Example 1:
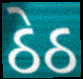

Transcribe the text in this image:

ઠેઠ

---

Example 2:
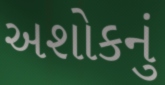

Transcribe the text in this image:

અશોકનું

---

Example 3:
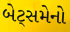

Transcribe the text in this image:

બેટ્સમેનો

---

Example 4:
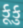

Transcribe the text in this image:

કૂકુ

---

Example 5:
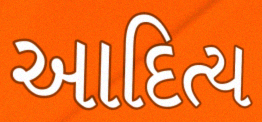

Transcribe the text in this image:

આદિત્ય